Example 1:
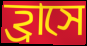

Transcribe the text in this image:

হ্রাসে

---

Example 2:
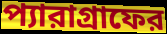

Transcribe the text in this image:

প্যারাগ্রাফের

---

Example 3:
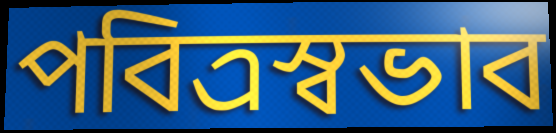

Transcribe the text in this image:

পবিত্রস্বভাব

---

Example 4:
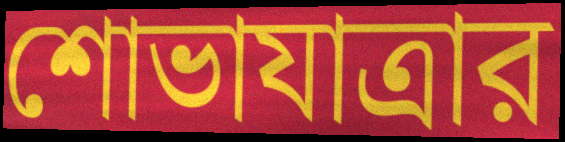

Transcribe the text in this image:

শোভাযাত্রার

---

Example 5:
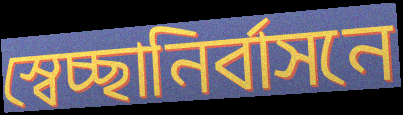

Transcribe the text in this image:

স্বেচ্ছানির্বাসনে